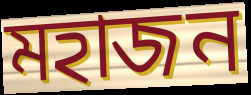
মহাজন